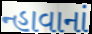
ન્હાવાનાં